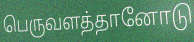
பெருவளத்தானோடு